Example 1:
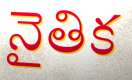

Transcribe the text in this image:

నైతిక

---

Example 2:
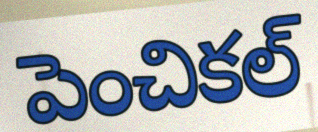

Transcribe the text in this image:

పెంచికల్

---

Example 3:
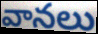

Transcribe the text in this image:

వానలు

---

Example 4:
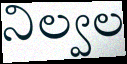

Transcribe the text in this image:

నిల్వల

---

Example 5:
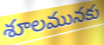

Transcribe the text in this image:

శూలమునకు